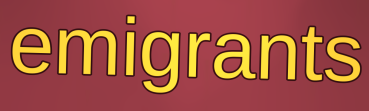
emigrants